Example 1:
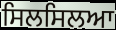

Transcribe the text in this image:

ਸਿਲਸਿਲਆ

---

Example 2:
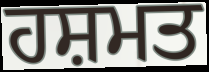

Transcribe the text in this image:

ਹਸ਼ਮਤ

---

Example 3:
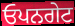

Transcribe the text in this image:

ਓਪਨਗੇਟ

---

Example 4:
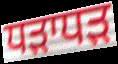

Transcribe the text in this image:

ਧੜਾਧੜ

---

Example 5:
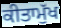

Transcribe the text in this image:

ਕੀਤਾਮੁੱਖ